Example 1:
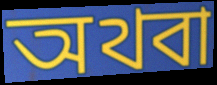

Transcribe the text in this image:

অথবা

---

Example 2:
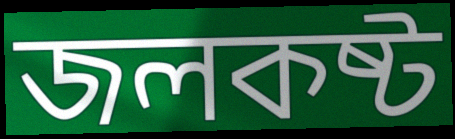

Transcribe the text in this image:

জলকষ্ট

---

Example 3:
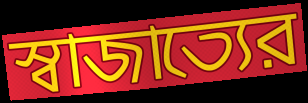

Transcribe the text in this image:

স্বাজাত্যের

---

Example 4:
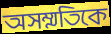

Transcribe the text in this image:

অসম্মতিকে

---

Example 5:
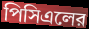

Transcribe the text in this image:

পিসিএলের